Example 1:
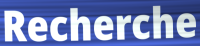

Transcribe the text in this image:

Recherche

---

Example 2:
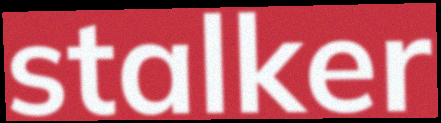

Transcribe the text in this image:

stalker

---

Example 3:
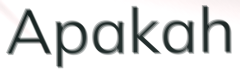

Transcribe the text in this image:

Apakah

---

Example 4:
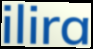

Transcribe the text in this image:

ilira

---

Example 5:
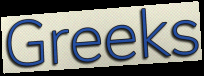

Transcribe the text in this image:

Greeks